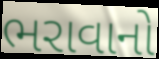
ભરાવાનો